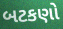
બટકણો